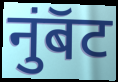
नुंबॅट